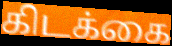
கிடக்கை